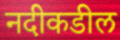
नदीकडील